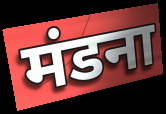
मंडना